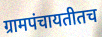
ग्रामपंचायतीतच